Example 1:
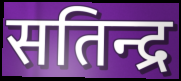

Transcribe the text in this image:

सतिन्द्र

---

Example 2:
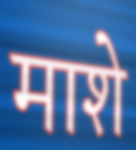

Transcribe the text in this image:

माशे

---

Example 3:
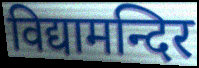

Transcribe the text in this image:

विद्यामन्दिर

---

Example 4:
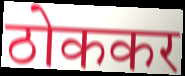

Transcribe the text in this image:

ठोककर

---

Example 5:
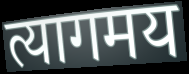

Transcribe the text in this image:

त्यागमय